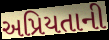
અપ્રિયતાની